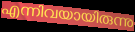
എന്നിവയായിരുന്നു